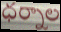
ధర్నాల